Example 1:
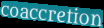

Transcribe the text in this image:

coaccretion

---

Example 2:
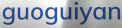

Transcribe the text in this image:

guoguiyan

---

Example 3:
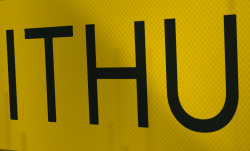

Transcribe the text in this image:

ITHU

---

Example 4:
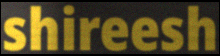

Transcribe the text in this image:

shireesh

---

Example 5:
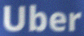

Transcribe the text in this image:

Uber